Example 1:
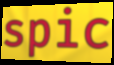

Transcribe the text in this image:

spic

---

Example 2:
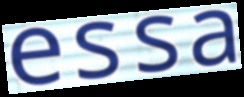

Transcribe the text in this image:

essa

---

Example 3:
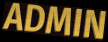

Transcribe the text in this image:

ADMIN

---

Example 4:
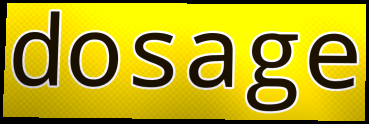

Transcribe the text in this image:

dosage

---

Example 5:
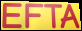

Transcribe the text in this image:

EFTA